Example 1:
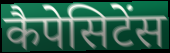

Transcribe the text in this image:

कैपेसिटेंस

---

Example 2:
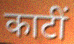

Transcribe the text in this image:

काटीं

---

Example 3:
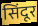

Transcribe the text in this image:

सिंदूर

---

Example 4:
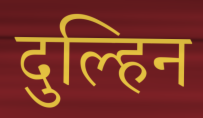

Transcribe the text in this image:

दुल्हिन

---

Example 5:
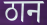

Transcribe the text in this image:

ठान